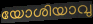
യോശിയാവു